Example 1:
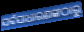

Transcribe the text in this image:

ସର୍ବସାଧାରଣଙ୍କଠାରୁ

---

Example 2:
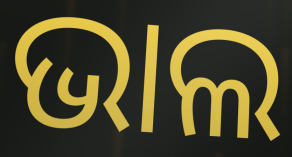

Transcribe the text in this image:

ଭାଲ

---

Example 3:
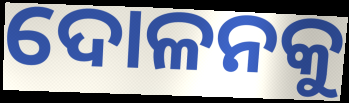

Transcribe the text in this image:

ଦୋଳନକୁ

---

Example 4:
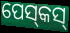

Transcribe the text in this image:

ପେସ୍‌କସ୍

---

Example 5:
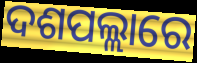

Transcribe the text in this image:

ଦଶପଲ୍ଲାରେ